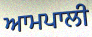
ਆਮਪਾਲੀ